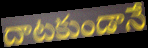
దాటకుండానే